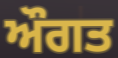
ਔਗਤ